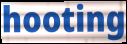
hooting